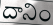
దానిం